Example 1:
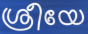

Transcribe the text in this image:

ശ്രീയേ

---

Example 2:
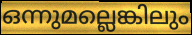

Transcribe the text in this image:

ഒന്നുമല്ലെങ്കിലും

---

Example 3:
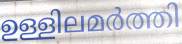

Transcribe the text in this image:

ഉള്ളിലമർത്തി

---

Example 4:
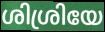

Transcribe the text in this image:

ശിശ്രിയേ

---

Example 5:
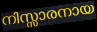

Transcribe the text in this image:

നിസ്സാരനായ